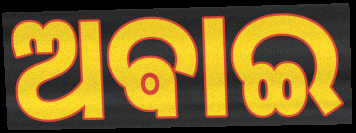
ଅଵାଇ